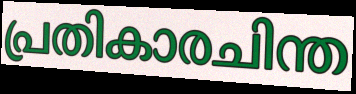
പ്രതികാരചിന്ത